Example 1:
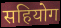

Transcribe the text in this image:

सहियोग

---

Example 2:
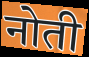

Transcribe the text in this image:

नोती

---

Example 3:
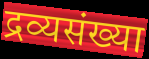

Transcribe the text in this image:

द्रव्यसंख्या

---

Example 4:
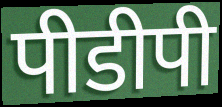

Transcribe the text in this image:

पीडीपी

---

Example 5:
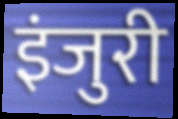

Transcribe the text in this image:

इंजुरी